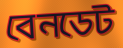
বেনডেট